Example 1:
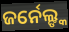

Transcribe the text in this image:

ଜର୍ନେଲ୍ଙ୍କ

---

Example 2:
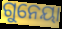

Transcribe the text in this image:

ଗୁନେୟା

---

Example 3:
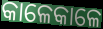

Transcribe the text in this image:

କାଳେକାଳେ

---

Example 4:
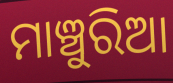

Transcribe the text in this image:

ମାଞ୍ଚୁରିଆ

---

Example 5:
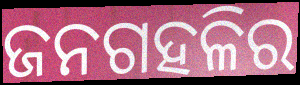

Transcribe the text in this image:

ଜନଗହଳିର